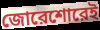
জোরেশোরেই